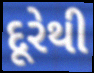
દૂરેથી